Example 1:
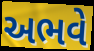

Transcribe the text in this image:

અભવે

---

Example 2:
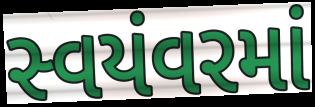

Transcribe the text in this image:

સ્વયંવરમાં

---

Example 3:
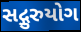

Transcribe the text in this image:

સદ્ગુરુયોગ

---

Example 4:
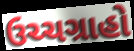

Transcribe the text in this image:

ઉચ્ચગ્રાહો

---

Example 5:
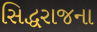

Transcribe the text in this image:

સિદ્ધરાજના